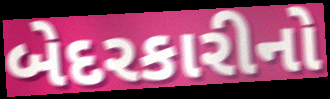
બેદરકારીનો